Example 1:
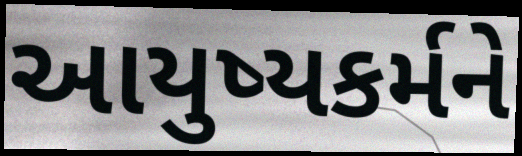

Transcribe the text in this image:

આયુષ્યકર્મને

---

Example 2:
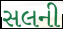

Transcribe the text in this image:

સલની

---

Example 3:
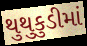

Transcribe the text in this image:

થુથુકુડીમાં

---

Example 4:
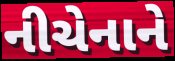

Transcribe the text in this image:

નીચેનાને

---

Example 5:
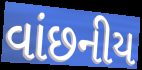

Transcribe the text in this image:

વાંછનીય